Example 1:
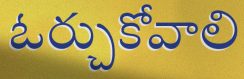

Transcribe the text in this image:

ఓర్చుకోవాలి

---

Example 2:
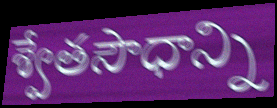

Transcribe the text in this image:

శ్వేతసౌధాన్ని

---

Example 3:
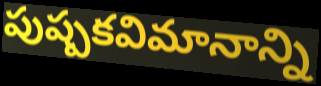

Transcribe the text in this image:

పుష్పకవిమానాన్ని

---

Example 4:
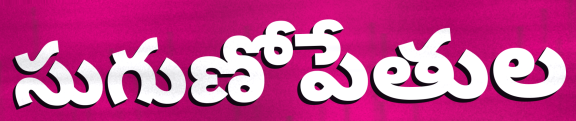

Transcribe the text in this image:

సుగుణోపేతుల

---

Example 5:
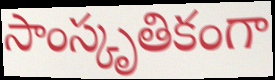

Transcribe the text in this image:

సాంస్కృతికంగా